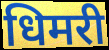
धिमरी